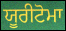
ਯੂਰੀਟੋਮਾ